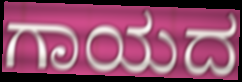
ಗಾಯದ